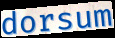
dorsum